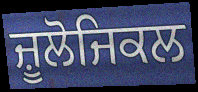
ਜ਼ੂਲੋਜਿਕਲ